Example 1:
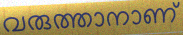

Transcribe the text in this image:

വരുത്താനാണ്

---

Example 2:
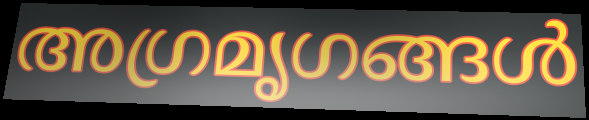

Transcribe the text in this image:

അഗ്രമൃഗങ്ങൾ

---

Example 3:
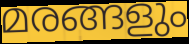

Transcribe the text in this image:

മരങ്ങളും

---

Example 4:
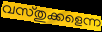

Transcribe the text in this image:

വസ്തുക്കളെന്ന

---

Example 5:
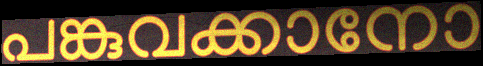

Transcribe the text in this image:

പങ്കുവക്കാനോ